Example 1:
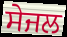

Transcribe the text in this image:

ਸੇਜਲ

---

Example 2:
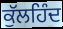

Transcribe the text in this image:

ਕੁੱਲਹਿੰਦ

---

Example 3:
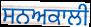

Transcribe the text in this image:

ਸਨਅਕਾਲੀ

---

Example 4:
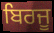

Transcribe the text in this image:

ਬਿਰਜੂ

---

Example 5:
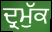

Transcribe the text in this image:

ਦ੍ਰਮੁੱਕ